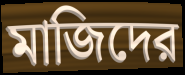
মাজিদের